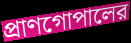
প্রাণগোপালের